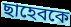
ছাহেবকে